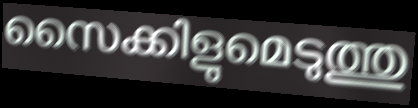
സൈക്കിളുമെടുത്തു